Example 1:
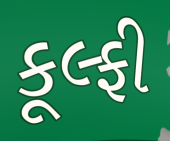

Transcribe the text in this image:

કૂલ્ફી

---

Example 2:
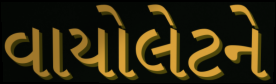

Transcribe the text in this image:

વાયોલેટને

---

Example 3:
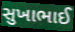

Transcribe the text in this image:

સુખાભાઈ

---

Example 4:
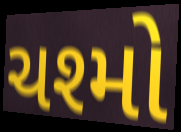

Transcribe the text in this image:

ચશ્મો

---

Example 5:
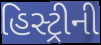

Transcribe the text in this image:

હિસ્ટ્રીની